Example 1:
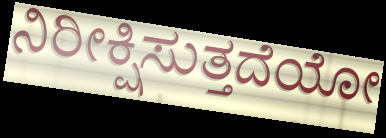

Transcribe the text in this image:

ನಿರೀಕ್ಷಿಸುತ್ತದೆಯೋ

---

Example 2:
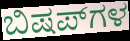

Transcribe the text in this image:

ಬಿಷಪ್‌ಗಳ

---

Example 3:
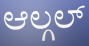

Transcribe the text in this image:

ಆಲ್ಗಲ್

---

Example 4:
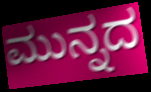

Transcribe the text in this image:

ಮುನ್ನದ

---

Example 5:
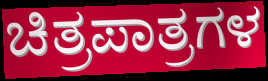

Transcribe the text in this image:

ಚಿತ್ರಪಾತ್ರಗಳ